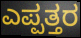
ಎಪ್ಪತ್ತರ